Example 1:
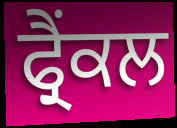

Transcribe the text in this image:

ਫ੍ਰੈਂਕਲ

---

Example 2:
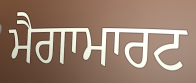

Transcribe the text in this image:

ਮੈਗਾਮਾਰਟ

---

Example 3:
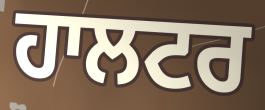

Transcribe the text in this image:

ਹਾਲਟਰ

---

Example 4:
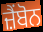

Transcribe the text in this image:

ਜ਼ੈਂਬੋਨ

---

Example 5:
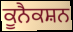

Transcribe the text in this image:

ਕੂਨੈਕਸ਼ਨ